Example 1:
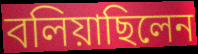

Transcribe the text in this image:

বলিয়াছিলেন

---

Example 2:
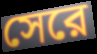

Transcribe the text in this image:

সেরে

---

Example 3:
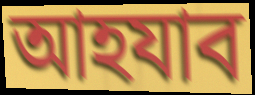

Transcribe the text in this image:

আহযাব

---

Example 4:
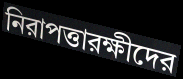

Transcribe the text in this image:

নিরাপত্তারক্ষীদের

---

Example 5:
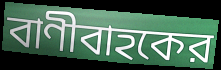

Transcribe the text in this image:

বাণীবাহকের